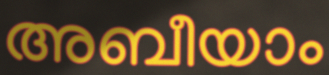
അബീയാം